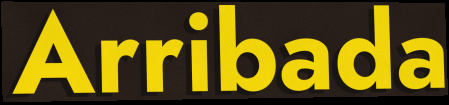
Arribada